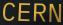
CERN